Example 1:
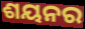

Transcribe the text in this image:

ଶୟନର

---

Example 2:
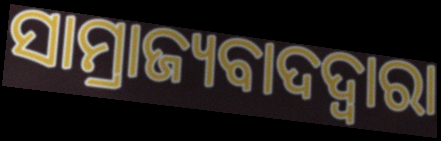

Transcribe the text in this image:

ସାମ୍ରାଜ୍ୟବାଦଦ୍ୱାରା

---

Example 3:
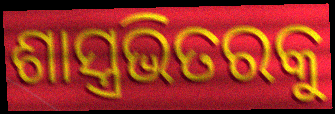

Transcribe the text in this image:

ଶାସ୍ତ୍ରଭିତରକୁ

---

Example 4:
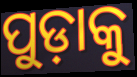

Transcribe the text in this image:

ପୁଡ଼ାକୁ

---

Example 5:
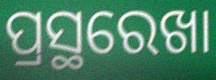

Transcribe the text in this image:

ପ୍ରସ୍ଥରେଖା